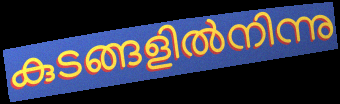
കുടങ്ങളിൽനിന്നു